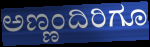
ಅಣ್ಣಂದಿರಿಗೂ